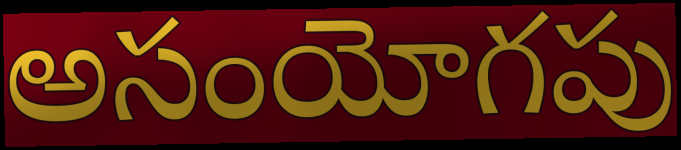
అసంయోగపు